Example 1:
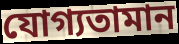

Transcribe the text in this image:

যোগ্যতামান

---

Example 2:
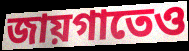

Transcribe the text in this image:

জায়গাতেও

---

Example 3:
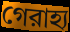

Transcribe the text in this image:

গেরাহ্য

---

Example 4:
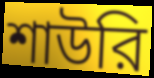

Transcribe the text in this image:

শাউরি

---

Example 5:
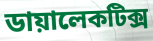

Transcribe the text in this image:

ডায়ালেকটিক্স